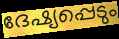
ദേഷ്യപ്പെടും